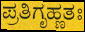
ಪ್ರತಿಗೃಹ್ಣತಃ